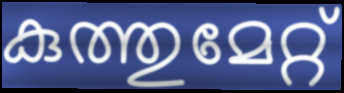
കുത്തുമേറ്റ്